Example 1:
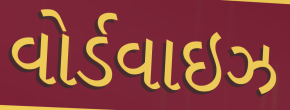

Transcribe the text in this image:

વોર્ડવાઇઝ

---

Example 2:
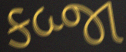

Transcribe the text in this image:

કબ્જા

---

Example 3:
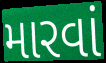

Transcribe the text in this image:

મારવાં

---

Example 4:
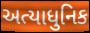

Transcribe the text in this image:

અત્યાધુનિક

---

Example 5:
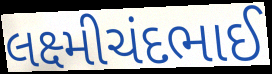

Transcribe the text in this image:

લક્ષ્મીચંદભાઈ